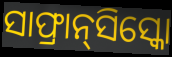
ସାଫ୍ରାନ୍‌ସିସ୍କୋ